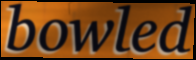
bowled